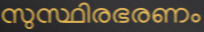
സുസ്ഥിരഭരണം